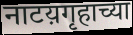
नाटय़गृहाच्या